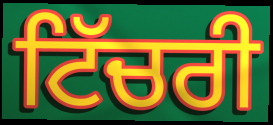
ਟਿੱਚਰੀ